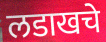
लडाखचे